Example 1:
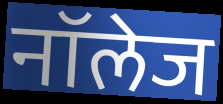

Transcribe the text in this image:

नॉलेज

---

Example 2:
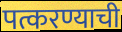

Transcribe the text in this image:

पत्करण्याची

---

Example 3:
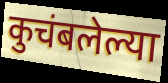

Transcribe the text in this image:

कुचंबलेल्या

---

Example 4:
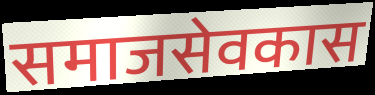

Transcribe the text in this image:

समाजसेवकास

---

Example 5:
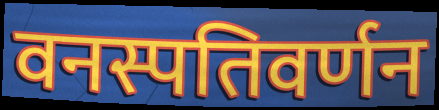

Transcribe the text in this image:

वनस्पतिवर्णन